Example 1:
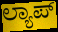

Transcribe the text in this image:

ಲ್ಯಾಪ್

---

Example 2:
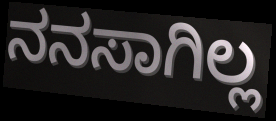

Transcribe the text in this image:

ನನಸಾಗಿಲ್ಲ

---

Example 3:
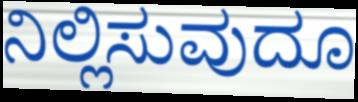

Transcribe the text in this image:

ನಿಲ್ಲಿಸುವುದೂ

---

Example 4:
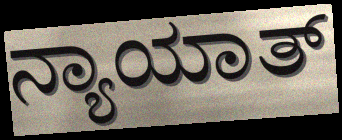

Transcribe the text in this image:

ನ್ಯಾಯಾತ್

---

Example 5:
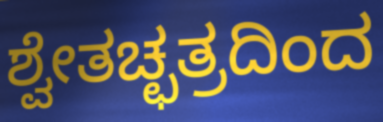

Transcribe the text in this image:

ಶ್ವೇತಚ್ಛತ್ರದಿಂದ